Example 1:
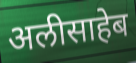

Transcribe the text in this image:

अलीसाहेब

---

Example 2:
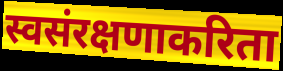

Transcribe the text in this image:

स्वसंरक्षणाकरिता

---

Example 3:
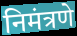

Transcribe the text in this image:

निमंत्रणे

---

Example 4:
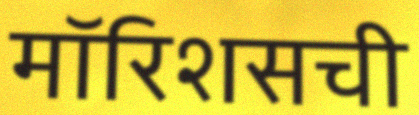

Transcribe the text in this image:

मॉरिशसची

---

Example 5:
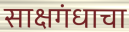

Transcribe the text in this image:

साक्षगंधाचा